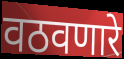
वठवणारे